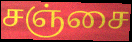
சஞ்சை